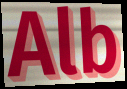
Alb